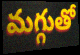
మగ్గుతో